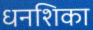
धनशिका